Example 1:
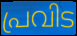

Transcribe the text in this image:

പ്രവിട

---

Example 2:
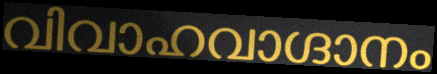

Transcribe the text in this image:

വിവാഹവാഗ്ദാനം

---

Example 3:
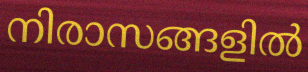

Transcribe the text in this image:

നിരാസങ്ങളിൽ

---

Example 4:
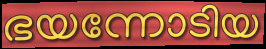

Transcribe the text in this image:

ഭയന്നോടിയ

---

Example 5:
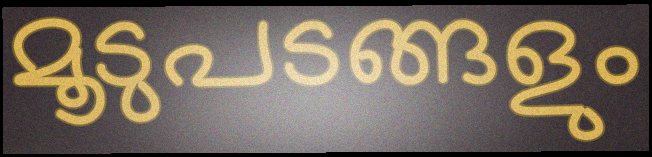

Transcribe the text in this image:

മൂടുപടങ്ങളും